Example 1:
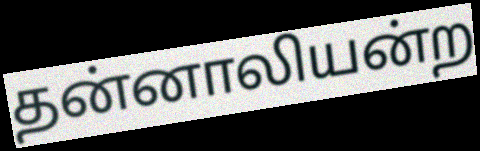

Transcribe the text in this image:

தன்னாலியன்ற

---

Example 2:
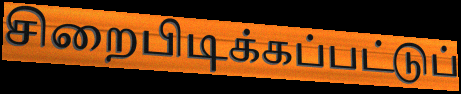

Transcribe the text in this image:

சிறைபிடிக்கப்பட்டுப்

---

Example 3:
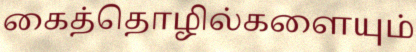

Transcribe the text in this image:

கைத்தொழில்களையும்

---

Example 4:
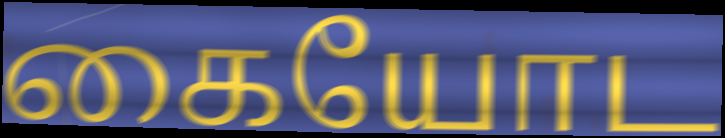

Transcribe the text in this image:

கையோட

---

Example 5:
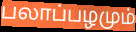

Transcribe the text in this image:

பலாப்பழமும்